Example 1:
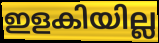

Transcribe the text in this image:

ഇളകിയില്ല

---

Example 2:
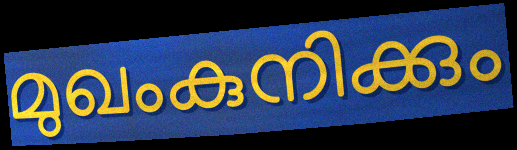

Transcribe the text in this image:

മുഖംകുനിക്കും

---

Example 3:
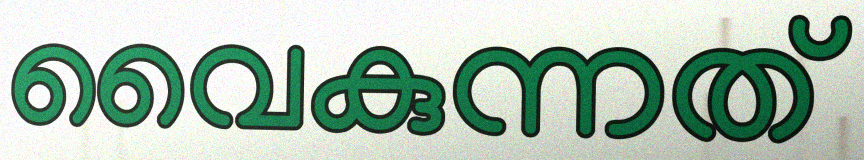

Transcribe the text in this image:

വൈകുന്നത്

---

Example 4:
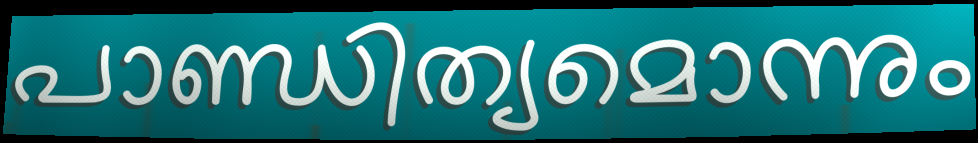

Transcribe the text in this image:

പാണ്ഡിത്യമൊന്നും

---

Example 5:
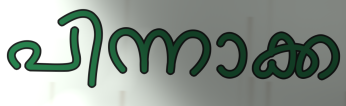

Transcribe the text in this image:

പിന്നാക്ക